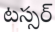
టస్సర్